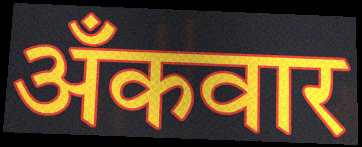
अँकवार